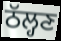
ਠੱਲ੍ਹਣ